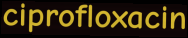
ciprofloxacin